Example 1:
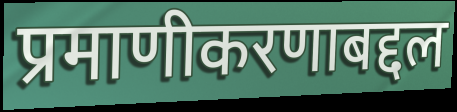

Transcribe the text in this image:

प्रमाणीकरणाबद्दल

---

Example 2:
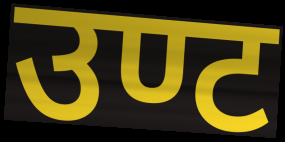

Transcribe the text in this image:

उण्ट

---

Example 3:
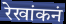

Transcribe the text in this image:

रेखांकनं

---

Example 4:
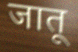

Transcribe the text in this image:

जातू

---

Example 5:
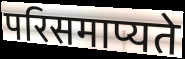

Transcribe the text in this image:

परिसमाप्यते